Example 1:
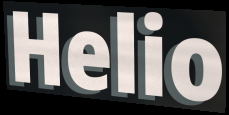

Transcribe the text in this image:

Helio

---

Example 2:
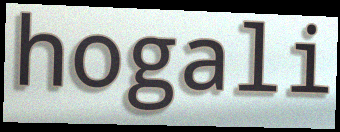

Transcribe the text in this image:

hogali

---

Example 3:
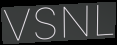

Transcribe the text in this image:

VSNL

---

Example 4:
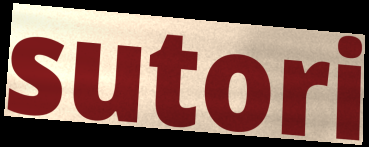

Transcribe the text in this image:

sutori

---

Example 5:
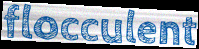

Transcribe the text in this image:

flocculent